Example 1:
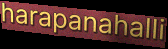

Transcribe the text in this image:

harapanahalli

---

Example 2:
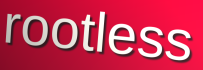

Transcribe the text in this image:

rootless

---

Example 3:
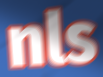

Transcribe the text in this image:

nls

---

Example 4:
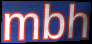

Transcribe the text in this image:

mbh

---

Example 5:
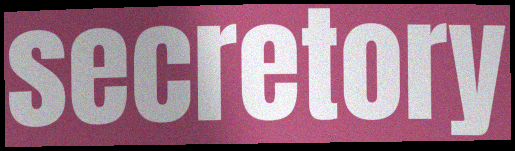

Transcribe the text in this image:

secretory